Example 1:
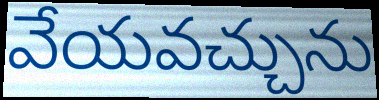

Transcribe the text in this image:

వేయవచ్చును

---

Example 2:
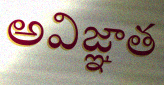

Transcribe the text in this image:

అవిజ్ఞాత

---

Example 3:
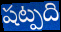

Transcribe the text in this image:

షట్పది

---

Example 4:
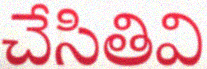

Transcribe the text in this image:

చేసితివి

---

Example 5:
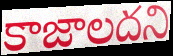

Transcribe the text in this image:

కాజాలదని